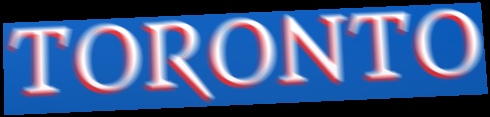
TORONTO